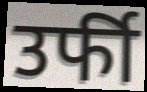
उर्फी